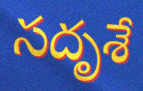
సదృశే